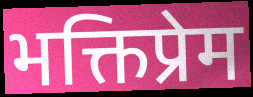
भक्तिप्रेम